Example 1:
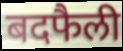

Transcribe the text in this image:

बदफैली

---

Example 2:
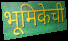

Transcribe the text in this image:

भूमिकेची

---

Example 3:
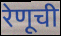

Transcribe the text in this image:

रेणूची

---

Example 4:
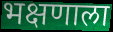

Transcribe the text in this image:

भक्षणाला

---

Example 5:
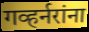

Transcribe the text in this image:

गव्हर्नरांना